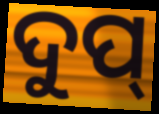
ଦୁପ୍